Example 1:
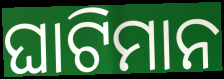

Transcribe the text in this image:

ଘାଟିମାନ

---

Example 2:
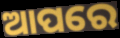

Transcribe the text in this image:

ଆପରେ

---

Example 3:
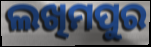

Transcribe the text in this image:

ଲଖିମପୁର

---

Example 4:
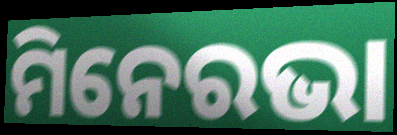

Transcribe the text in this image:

ମିନେରଭା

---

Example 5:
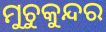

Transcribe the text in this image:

ମୁଚୁକୁନ୍ଦର